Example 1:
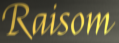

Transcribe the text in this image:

Raisom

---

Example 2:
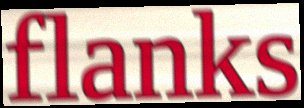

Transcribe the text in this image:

flanks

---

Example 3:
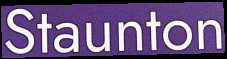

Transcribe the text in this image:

Staunton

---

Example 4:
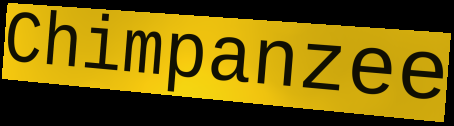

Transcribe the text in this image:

Chimpanzee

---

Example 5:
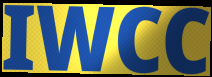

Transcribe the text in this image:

IWCC